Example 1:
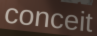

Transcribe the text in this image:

conceit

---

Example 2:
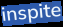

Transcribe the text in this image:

inspite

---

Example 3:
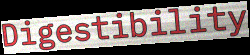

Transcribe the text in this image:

Digestibility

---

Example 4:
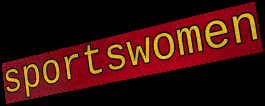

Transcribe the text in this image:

sportswomen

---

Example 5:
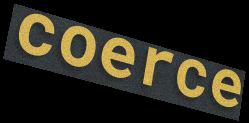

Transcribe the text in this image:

coerce